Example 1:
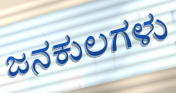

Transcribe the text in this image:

ಜನಕುಲಗಳು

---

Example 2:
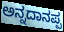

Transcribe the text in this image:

ಅನ್ನದಾನಪ್ಪ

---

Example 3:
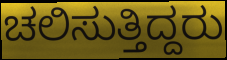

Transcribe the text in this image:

ಚಲಿಸುತ್ತಿದ್ದರು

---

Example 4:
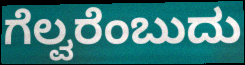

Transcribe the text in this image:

ಗೆಲ್ವರೆಂಬುದು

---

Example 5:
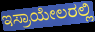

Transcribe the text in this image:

ಇಸ್ರಾಯೇಲರಲ್ಲಿ